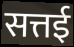
सत्तई